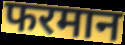
फरमान